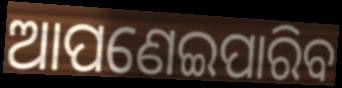
ଆପଣେଇପାରିବ